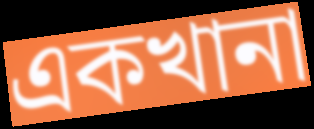
একখানা